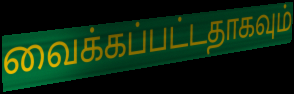
வைக்கப்பட்டதாகவும்